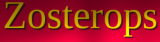
Zosterops